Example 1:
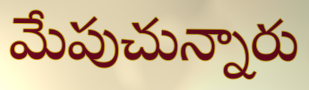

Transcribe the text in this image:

మేపుచున్నారు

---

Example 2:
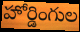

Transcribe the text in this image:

హోర్డింగుల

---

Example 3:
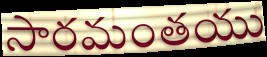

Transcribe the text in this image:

సారమంతయు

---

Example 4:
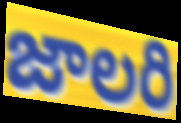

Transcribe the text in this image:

జాలరి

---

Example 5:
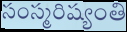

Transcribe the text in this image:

సంస్మరిష్యంతి